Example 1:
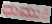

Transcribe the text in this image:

ಧುಮುಕಿ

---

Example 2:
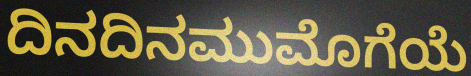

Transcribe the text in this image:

ದಿನದಿನಮುಮೊಗೆಯೆ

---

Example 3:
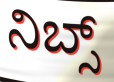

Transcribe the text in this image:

ನಿಬ್ಸ್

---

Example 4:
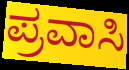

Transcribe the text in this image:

ಪ್ರವಾಸಿ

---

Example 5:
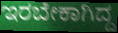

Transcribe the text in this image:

ಇರಬೇಕಾಗಿದ್ದ